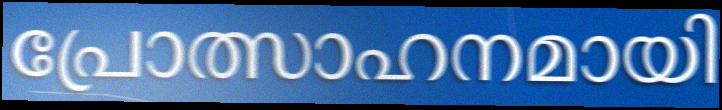
പ്രോത്സാഹനമായി